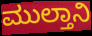
ಮುಲ್ತಾನಿ